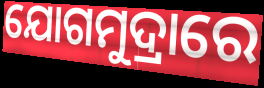
ଯୋଗମୁଦ୍ରାରେ